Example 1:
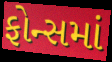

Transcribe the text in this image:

ફોન્સમાં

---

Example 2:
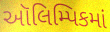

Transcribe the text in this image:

ઑલિમ્પિકમાં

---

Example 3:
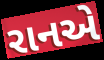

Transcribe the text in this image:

રાનએ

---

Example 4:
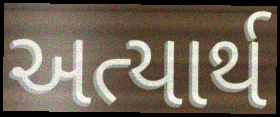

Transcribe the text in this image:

અત્યાર્થ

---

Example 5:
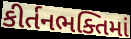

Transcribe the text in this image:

કીર્તનભક્તિમાં